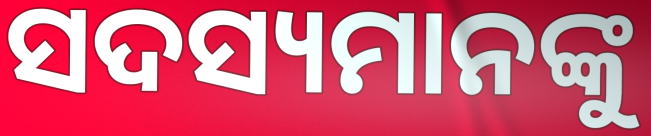
ସଦସ୍ୟମାନଙ୍କୁ